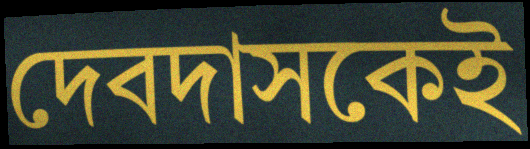
দেবদাসকেই